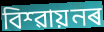
বিশ্ৱায়নৰ